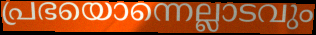
പ്രഭയൊന്നെല്ലാടവും